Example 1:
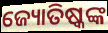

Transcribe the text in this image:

ଜ୍ୟୋତିଷ୍କଙ୍କ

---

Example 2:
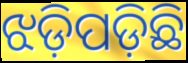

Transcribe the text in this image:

ଝଡ଼ିପଡ଼ିଛି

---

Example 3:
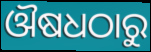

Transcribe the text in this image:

ଔଷଧଠାରୁ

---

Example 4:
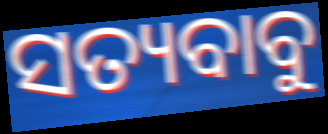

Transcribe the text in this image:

ସତ୍ୟବାବୁ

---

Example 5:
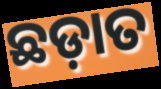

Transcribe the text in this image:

ଛଡ଼ାତ